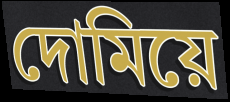
দোমিয়ে